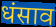
धंसाव